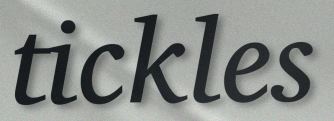
tickles